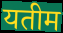
यतीम